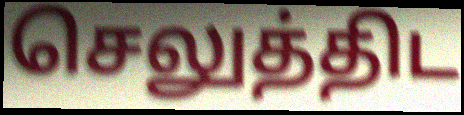
செலுத்திட